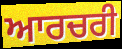
ਆਰਚਰੀ